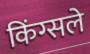
किंग्सले